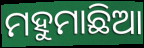
ମହୁମାଛିଆ